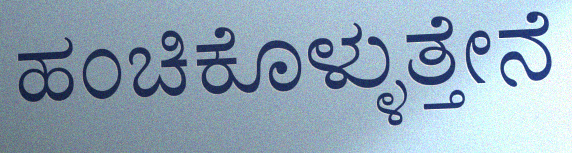
ಹಂಚಿಕೊಳ್ಳುತ್ತೇನೆ